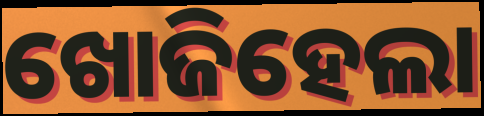
ଖୋଜିହେଲା